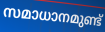
സമാധാനമുണ്ട്